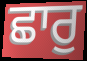
ਛਾਰੁ